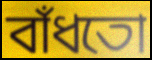
বাঁধতো